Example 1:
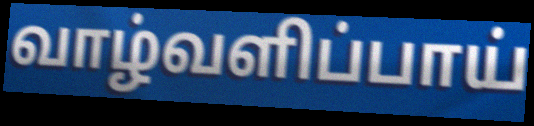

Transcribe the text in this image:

வாழ்வளிப்பாய்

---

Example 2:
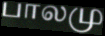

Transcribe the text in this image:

பாலமு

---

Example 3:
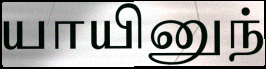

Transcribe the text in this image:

யாயினுந்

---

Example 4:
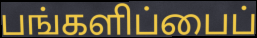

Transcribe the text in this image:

பங்களிப்பைப்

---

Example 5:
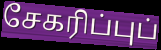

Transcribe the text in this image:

சேகரிப்புப்